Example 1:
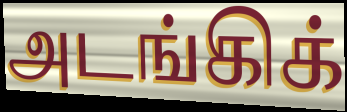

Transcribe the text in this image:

அடங்கிக்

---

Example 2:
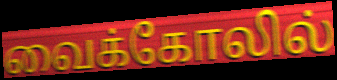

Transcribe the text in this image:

வைக்கோலில்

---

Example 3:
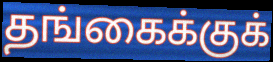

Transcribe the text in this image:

தங்கைக்குக்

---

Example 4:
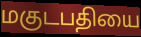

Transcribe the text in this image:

மகுடபதியை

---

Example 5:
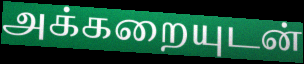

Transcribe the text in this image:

அக்கறையுடன்